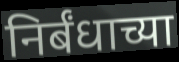
निर्बंधाच्या